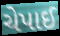
ચેપાઈ